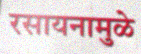
रसायनामुळे